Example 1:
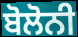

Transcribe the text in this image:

ਬੋਲੋਨੀ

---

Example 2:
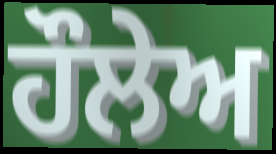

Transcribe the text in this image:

ਹੌਲੇਅ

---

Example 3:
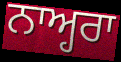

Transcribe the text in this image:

ਨਾਅ੍ਹਰਾ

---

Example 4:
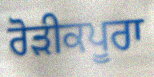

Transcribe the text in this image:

ਰੋੜੀਕਪੂਰਾ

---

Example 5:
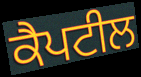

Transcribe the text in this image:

ਕੈਪਟੀਲ